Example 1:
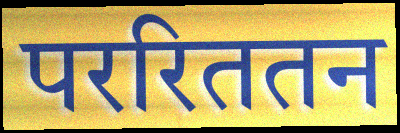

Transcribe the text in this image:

पररिततन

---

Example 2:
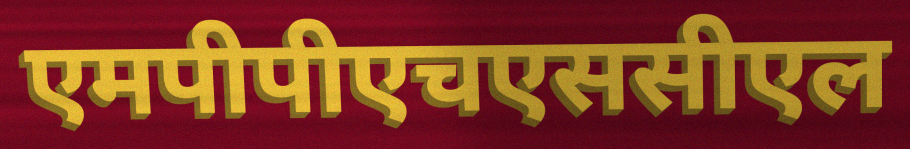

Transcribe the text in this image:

एमपीपीएचएससीएल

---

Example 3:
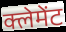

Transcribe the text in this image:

क्लेमेंट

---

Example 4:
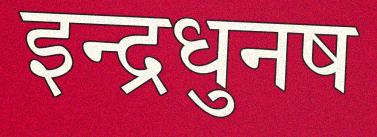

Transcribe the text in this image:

इन्द्रधुनष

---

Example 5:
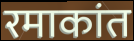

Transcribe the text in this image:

रमाकांत